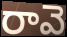
రావె